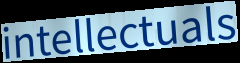
intellectuals